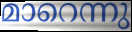
മാറെന്നു